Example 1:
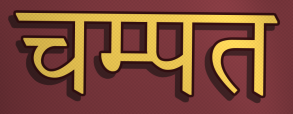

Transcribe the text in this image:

चम्पत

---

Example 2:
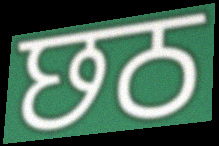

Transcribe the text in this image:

छठ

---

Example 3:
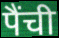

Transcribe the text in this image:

पैंची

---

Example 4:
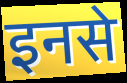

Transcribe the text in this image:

इनसे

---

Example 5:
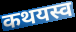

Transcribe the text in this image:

कथयस्व